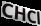
CHCl